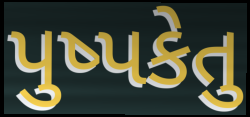
પુષ્પકેતુ